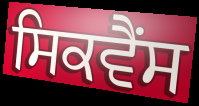
ਸਿਕਵੈਂਸ